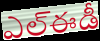
ఎల్ఈడీ